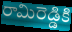
రామిరెడ్డికి